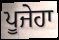
ਪੂਜੇਹਾ